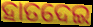
ହାତଦେଇ